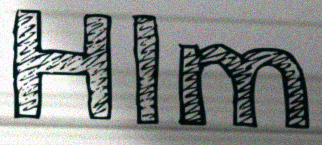
HIm